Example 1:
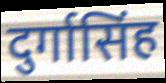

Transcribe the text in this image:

दुर्गासिंह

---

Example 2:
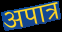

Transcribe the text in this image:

अपात्र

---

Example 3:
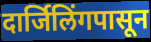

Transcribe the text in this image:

दार्जिलिंगपासून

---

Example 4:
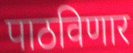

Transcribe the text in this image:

पाठविणार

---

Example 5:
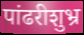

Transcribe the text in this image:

पांढरीशुभ्र